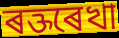
ৰক্তৰেখা